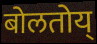
बोलतोय्